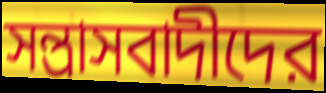
সন্ত্রাসবাদীদের